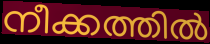
നീക്കത്തിൽ